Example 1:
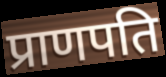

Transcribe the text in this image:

प्राणपति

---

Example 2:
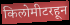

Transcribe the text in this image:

किलोमीटरहून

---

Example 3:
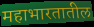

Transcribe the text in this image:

महाभारतातील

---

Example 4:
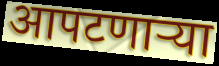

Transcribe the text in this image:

आपटणाऱ्या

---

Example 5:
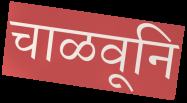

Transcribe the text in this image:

चाळवूनि